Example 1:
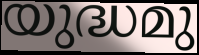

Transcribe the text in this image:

യുദ്ധമു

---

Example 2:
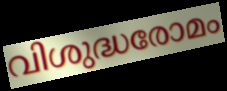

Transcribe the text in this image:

വിശുദ്ധരോമം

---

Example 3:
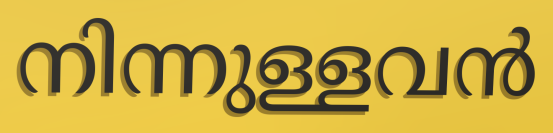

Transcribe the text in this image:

നിന്നുള്ളവൻ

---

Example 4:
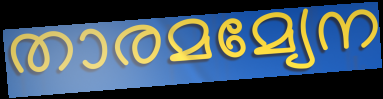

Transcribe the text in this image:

താരമമ്യേന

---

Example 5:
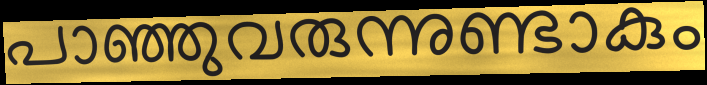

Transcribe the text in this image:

പാഞ്ഞുവരുന്നുണ്ടാകും